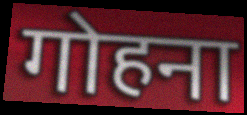
गोहना